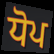
ਧੋਪ